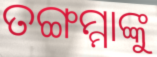
ତଙ୍ଗମ୍ମାଙ୍କୁ